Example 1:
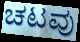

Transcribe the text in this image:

ಚಟವು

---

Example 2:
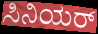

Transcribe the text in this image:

ಸಿನಿಯರ್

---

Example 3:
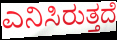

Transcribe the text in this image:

ಎನಿಸಿರುತ್ತದೆ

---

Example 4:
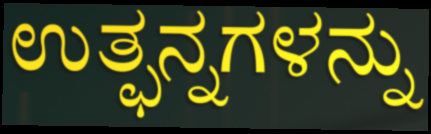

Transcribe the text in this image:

ಉತ್ಫನ್ನಗಳನ್ನು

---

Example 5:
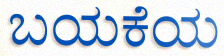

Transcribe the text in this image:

ಬಯಕೆಯ